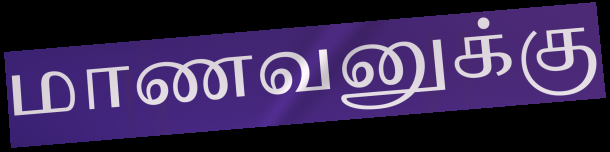
மாணவனுக்கு